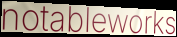
notableworks